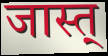
जास्त्